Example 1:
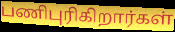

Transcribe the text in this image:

பணிபுரிகிறார்கள்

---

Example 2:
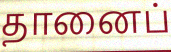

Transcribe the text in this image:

தானைப்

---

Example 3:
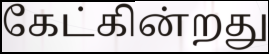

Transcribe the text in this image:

கேட்கின்றது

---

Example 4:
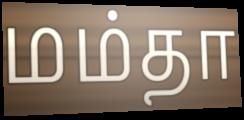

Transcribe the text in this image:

மம்தா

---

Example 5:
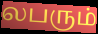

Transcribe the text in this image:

லபரும்